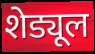
शेड्यूल